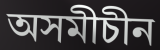
অসমীচীন